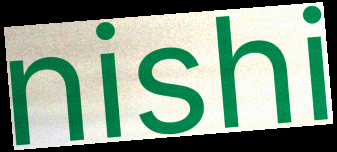
nishi